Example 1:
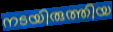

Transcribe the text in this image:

നടയിരുത്തിയ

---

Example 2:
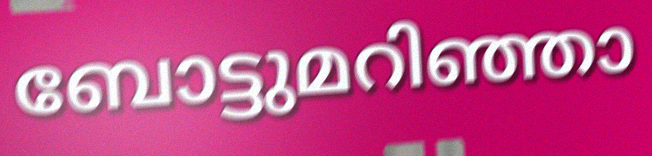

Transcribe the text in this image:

ബോട്ടുമറിഞ്ഞാ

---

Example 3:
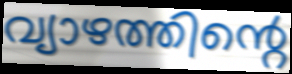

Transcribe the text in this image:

വ്യാഴത്തിന്റെ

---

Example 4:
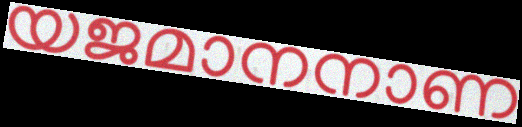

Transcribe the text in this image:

യജമാനനാണ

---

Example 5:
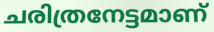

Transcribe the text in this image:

ചരിത്രനേട്ടമാണ്